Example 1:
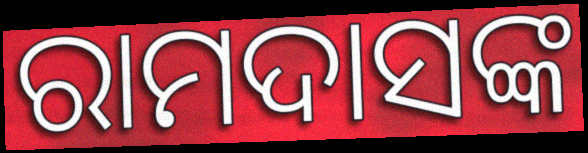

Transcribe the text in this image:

ରାମଦାସଙ୍କ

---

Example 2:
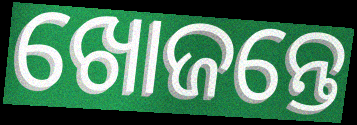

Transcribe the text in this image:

ଖୋଜନ୍ତେ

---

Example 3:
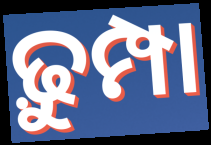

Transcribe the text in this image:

ଢ଼ୁମ୍ପା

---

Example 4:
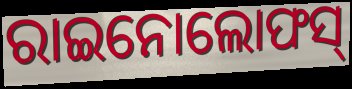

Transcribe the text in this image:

ରାଇନୋଲୋଫସ୍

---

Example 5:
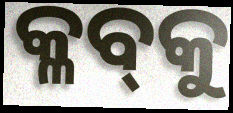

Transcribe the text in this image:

କ୍ଳବ୍‍କୁ